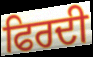
ਫਿਰਦੀ